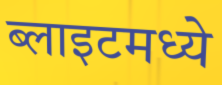
ब्लाइटमध्ये